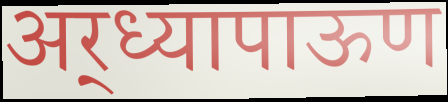
अर्ध्यापाऊण